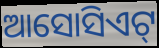
ଆସୋସିଏଟ୍